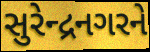
સુરેન્દ્રનગરને